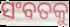
ସଂବତକୁ